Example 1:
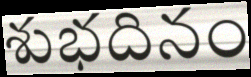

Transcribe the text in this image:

శుభదినం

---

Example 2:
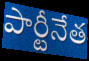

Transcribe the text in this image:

పార్టీనేత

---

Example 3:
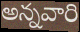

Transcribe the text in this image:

అన్నవారి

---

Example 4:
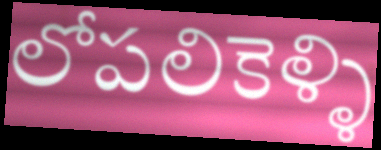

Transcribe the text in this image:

లోపలికెళ్ళి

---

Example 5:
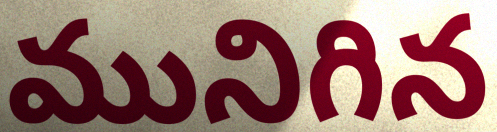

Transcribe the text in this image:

మునిగిన